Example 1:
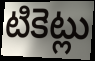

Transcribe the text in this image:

టికెట్లు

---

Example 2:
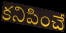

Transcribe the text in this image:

కనిపించే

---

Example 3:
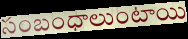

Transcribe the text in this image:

సంబంధాలుంటాయి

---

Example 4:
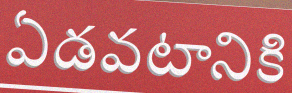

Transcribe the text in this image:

ఏడవటానికి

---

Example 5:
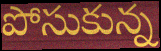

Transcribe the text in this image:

పోసుకున్న